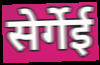
सेर्गेई